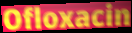
Ofloxacin